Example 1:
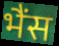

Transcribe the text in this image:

भैंस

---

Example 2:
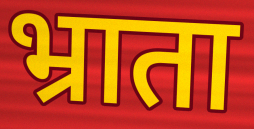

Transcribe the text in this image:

भ्राता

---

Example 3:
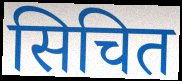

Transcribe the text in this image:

सिचित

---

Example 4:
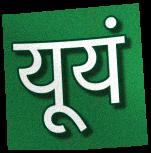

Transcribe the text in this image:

यूयं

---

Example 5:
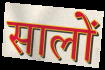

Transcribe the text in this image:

सालों